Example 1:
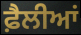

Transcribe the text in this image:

ਫ਼ੈਲੀਆਂ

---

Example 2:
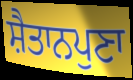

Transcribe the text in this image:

ਸ਼ੈਤਾਨਪੁਣਾ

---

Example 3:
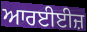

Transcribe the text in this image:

ਆਰਈਈਜ਼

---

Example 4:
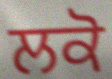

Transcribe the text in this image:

ਲਕੋ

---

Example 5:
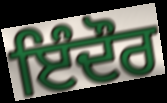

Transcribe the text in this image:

ਇੰਦੌਰ